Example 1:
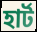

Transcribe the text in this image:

হাৰ্ট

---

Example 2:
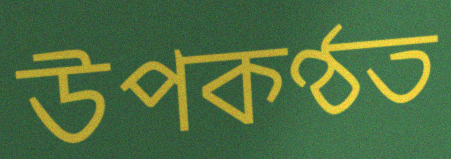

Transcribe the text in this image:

উপকণ্ঠত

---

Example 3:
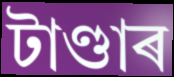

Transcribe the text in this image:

টাণ্ডাৰ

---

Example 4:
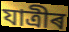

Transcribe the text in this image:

যাত্ৰীৰ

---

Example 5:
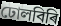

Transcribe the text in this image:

ঢোলবিৰি